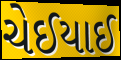
ચેઈયાઈ